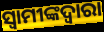
ସ୍ୱାମୀଙ୍କଦ୍ୱାରା